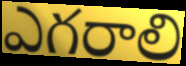
ఎగరాలి